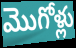
మొగోళ్లు